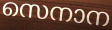
സെനാന